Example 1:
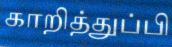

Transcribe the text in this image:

காறித்துப்பி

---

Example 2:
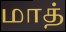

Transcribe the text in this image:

மாத்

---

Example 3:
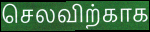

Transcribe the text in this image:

செலவிற்காக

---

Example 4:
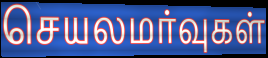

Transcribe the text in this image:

செயலமர்வுகள்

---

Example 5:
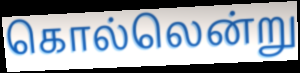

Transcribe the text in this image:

கொல்லென்று